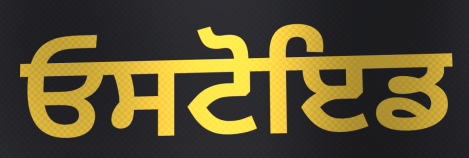
ਓਸਟੋਇਡ